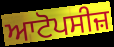
ਆਟੋਪਸੀਜ਼